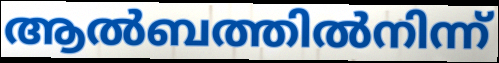
ആൽബത്തിൽനിന്ന്